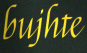
bujhte